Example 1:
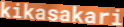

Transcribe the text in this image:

kikasakari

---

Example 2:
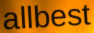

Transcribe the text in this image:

allbest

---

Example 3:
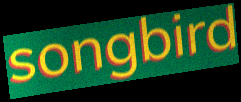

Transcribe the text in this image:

songbird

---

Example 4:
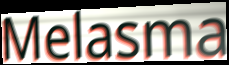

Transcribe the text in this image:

Melasma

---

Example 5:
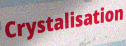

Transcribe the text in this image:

Crystalisation